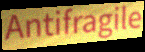
Antifragile